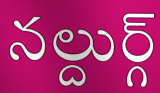
నల్దుర్గ్